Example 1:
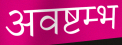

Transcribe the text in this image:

अवष्टम्भ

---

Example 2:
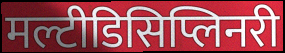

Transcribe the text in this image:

मल्टीडिसिप्लिनरी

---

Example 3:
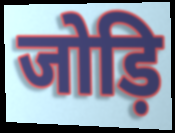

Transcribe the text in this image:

जोड़ि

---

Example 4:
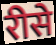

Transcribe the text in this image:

रीसे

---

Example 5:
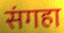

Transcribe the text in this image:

संगहा